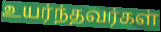
உயர்ந்தவர்கள்